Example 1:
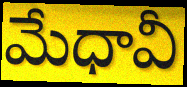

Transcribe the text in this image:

మేధావీ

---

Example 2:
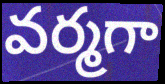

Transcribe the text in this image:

వర్మగా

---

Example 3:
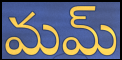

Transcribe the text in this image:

మమ్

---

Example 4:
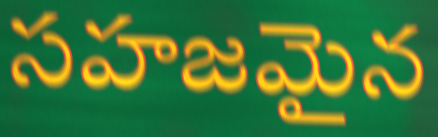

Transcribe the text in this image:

సహజమైన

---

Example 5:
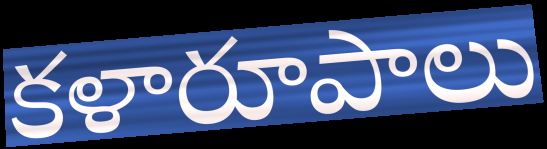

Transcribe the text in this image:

కళారూపాలు